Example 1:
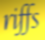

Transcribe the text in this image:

riffs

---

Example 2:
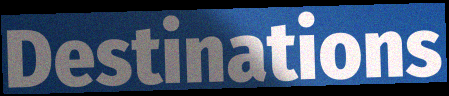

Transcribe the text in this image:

Destinations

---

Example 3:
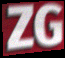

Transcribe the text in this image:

ZG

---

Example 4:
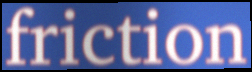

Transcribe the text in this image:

friction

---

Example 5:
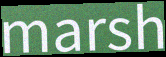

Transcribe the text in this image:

marsh